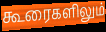
கூரைகளிலும்